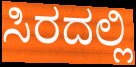
ಸಿರದಲ್ಲಿ